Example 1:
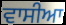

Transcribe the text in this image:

ਵਾਸੀਆ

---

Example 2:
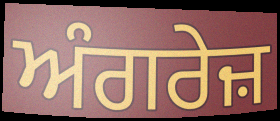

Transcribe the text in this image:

ਅੰਗਰੇਜ਼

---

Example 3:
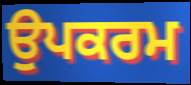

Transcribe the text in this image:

ਉਪਕਰਮ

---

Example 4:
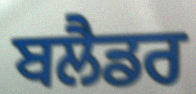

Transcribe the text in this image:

ਬਲੈਡਰ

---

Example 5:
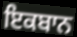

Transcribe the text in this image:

ਇਕਬਾਨ